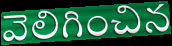
వెలిగించిన